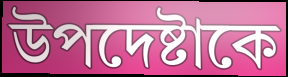
উপদেষ্টাকে